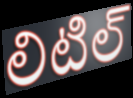
లిటిల్